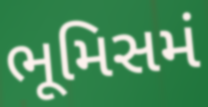
ભૂમિસમં